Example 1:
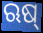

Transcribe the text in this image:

ଋଷ୍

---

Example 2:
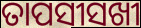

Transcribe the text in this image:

ତାପସୀସଖୀ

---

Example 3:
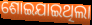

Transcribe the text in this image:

ଶୋଇଯାଇଥିଲା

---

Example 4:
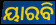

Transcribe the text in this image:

ୟାରବି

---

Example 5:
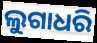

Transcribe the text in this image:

ଲୁଗାଧରି